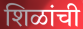
शिळांची